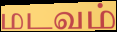
மடவம்